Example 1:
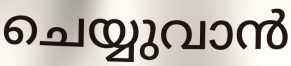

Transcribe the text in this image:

ചെയ്യുവാൻ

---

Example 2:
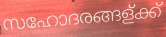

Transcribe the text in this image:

സഹോദരങ്ങള്ക്ക്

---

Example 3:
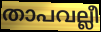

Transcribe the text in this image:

താപവല്ലീ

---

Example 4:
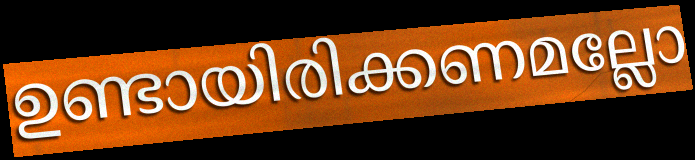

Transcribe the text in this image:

ഉണ്ടായിരിക്കണമല്ലോ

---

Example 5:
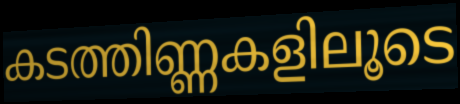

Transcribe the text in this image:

കടത്തിണ്ണകളിലൂടെ